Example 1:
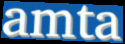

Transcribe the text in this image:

amta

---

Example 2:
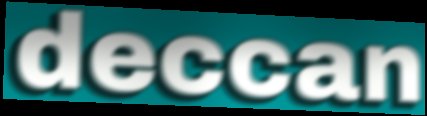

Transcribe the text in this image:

deccan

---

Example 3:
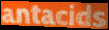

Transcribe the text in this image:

antacids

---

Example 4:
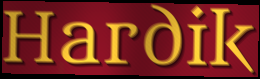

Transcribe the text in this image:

Hardik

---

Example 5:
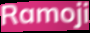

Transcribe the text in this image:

Ramoji